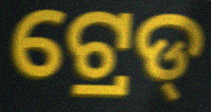
ଟ୍ରେଡ୍